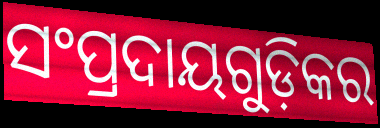
ସଂପ୍ରଦାୟଗୁଡ଼ିକର